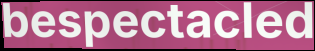
bespectacled